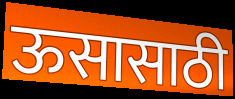
ऊसासाठी